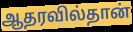
ஆதரவில்தான்